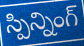
స్పిన్నింగ్